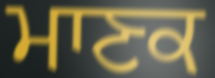
ਮਾਣਕ